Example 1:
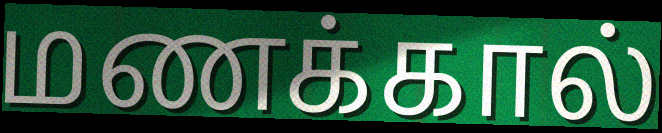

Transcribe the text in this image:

மணக்கால்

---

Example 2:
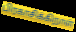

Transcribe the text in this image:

பிரகாசிக்கிறாள்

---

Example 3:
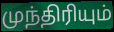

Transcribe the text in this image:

முந்திரியும்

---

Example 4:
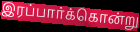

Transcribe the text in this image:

இரப்பார்க்கொன்று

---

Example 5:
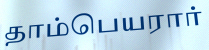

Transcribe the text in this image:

தாம்பெயரார்